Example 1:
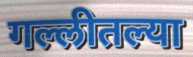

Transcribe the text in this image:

गल्लीतल्या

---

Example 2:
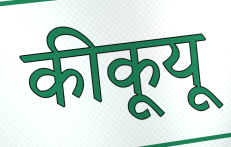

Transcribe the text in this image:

कीकूयू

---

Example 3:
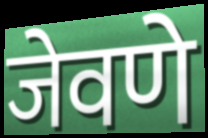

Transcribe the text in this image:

जेवणे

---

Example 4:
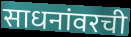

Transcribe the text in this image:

साधनांवरची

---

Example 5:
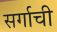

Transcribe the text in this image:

सर्गाची